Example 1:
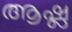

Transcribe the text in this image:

ആഷ്ല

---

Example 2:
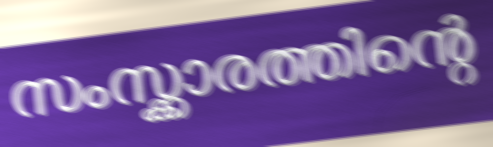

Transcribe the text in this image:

സംസ്ക്കാരത്തിന്റെ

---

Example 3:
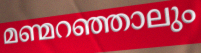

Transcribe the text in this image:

മണ്മറഞ്ഞാലും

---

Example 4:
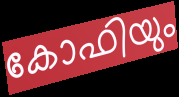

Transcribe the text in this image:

കോഫിയും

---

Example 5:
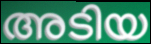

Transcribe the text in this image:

അടിയ